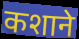
कशाने